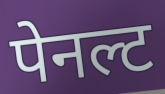
पेनल्ट